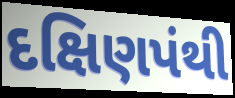
દક્ષિણપંથી